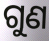
ଗୁଣ